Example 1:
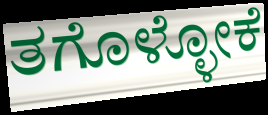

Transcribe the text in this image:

ತಗೊಳ್ಳೋಕೆ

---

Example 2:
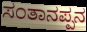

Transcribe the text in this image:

ಸಂತಾನಪ್ಪನ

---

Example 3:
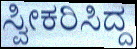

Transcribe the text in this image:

ಸ್ವೀಕರಿಸಿದ್ದ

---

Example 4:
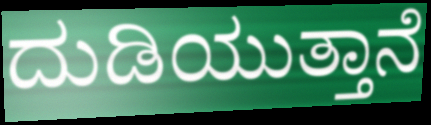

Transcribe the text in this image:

ದುಡಿಯುತ್ತಾನೆ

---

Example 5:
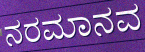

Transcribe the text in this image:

ನರಮಾನವ